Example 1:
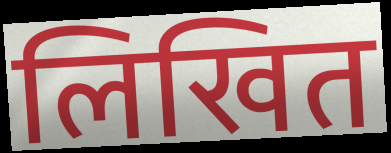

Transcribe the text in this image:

लिखित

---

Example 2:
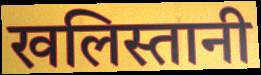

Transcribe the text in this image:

खलिस्तानी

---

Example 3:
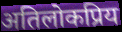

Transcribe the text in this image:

अतिलोकप्रिय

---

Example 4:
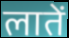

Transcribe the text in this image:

लातें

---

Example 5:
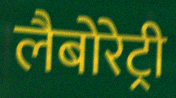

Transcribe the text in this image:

लैबोरेट्री